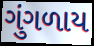
ગુંગળાય